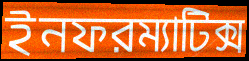
ইনফরম্যাটিক্স